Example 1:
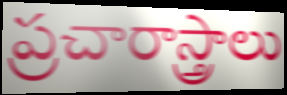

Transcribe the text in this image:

ప్రచారాస్త్రాలు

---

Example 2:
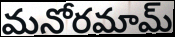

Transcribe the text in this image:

మనోరమామ్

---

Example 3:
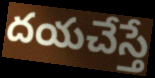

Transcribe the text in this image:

దయచేస్తే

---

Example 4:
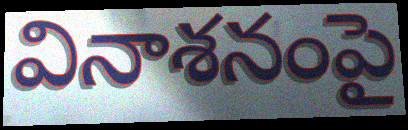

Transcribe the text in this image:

వినాశనంపై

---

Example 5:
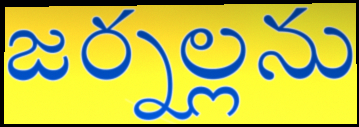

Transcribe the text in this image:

జర్నల్లను